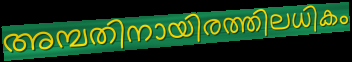
അമ്പതിനായിരത്തിലധികം